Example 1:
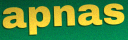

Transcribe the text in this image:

apnas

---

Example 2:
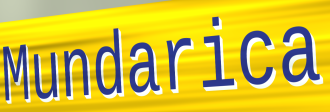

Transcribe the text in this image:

Mundarica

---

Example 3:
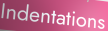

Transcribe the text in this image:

Indentations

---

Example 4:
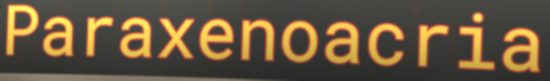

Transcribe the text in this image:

Paraxenoacria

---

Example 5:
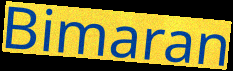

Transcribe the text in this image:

Bimaran